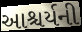
આશ્ચર્યની